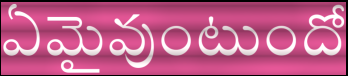
ఏమైవుంటుందో